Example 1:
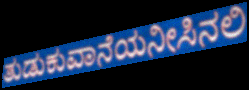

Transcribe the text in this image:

ತುಡುಕುವಾನೆಯನೀಸಿನಲಿ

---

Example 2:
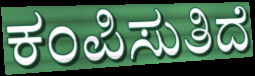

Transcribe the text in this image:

ಕಂಪಿಸುತಿದೆ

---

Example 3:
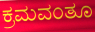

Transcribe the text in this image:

ಕ್ರಮವಂತೂ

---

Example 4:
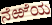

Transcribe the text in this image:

ನೆಱೆಯ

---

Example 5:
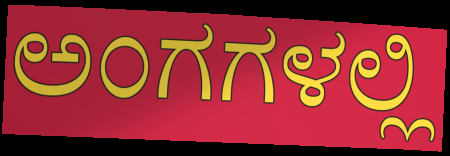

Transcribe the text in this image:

ಅಂಗಗಳಲ್ಲಿ